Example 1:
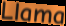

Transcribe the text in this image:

Llama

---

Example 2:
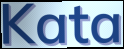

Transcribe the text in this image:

Kata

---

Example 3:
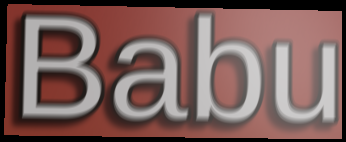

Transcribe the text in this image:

Babu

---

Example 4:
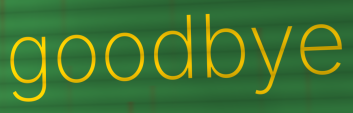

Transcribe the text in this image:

goodbye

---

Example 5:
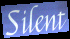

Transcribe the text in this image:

Silent